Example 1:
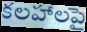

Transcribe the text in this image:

కలహాలపై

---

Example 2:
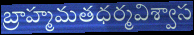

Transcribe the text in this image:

బ్రాహ్మమతధర్మవిశ్వాస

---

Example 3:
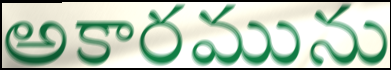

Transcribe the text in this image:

అకారమును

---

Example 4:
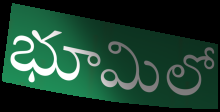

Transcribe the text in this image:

భూమిలో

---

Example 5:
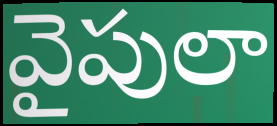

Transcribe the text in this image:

వైపులా